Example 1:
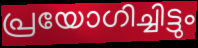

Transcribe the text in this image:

പ്രയോഗിച്ചിട്ടും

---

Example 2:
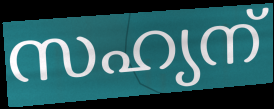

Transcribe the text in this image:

സഹ്യന്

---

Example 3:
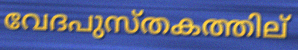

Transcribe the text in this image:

വേദപുസ്തകത്തില്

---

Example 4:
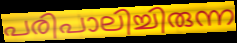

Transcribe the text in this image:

പരിപാലിച്ചിരുന്ന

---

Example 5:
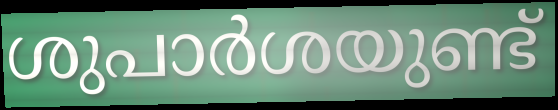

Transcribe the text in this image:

ശുപാർശയുണ്ട്